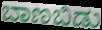
ಬಾಣಬಿಡು